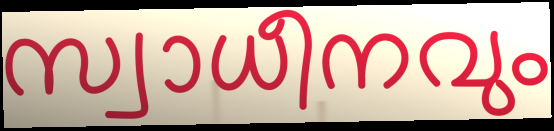
സ്വാധീനവും